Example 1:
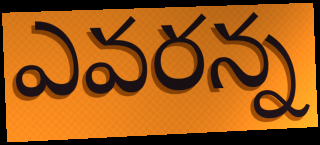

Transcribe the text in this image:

ఎవరన్న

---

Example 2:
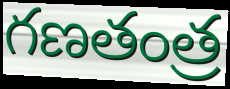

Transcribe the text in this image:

గణతంత్ర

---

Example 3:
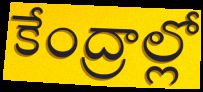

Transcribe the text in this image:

కేంద్రాల్లో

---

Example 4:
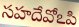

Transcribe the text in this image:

సహదేవోఽపి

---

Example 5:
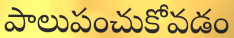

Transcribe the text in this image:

పాలుపంచుకోవడం